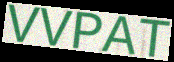
VVPAT